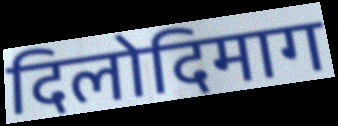
दिलोदिमाग